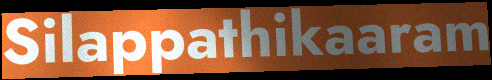
Silappathikaaram